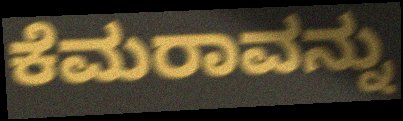
ಕೆಮರಾವನ್ನು